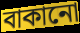
বাকানো